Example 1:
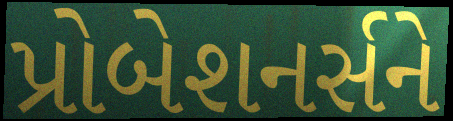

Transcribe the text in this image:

પ્રોબેશનર્સને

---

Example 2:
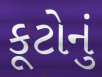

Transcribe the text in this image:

કૂટોનું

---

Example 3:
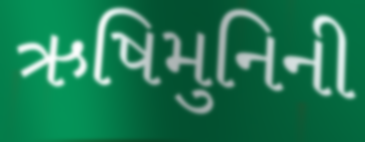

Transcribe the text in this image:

ઋષિમુનિની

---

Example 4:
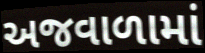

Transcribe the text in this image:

અજવાળામાં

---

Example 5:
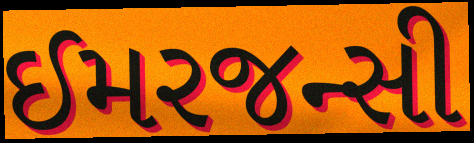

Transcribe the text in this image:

ઈમરજન્સી